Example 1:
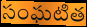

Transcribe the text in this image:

సంఘటిత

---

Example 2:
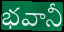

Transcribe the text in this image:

భవానీ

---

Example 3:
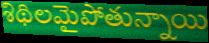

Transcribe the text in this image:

శిథిలమైపోతున్నాయి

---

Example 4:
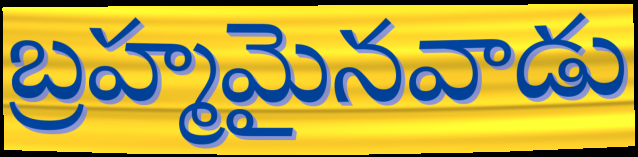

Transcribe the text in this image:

బ్రహ్మమైనవాడు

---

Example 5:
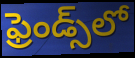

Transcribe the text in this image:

ఫ్రెండ్స్‌లో